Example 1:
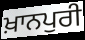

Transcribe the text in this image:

ਖ਼ਾਨਪੁਰੀ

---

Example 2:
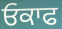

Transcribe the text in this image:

ਓਕਾਫ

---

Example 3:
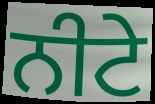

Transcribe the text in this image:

ਨੀਟੇ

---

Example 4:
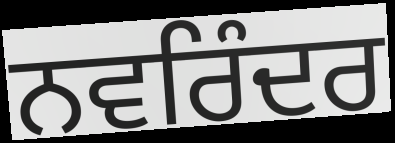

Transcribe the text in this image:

ਨਵਰਿੰਦਰ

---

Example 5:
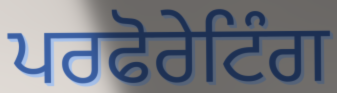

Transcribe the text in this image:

ਪਰਫੋਰੇਟਿੰਗ